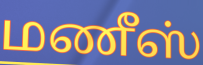
மணீஸ்